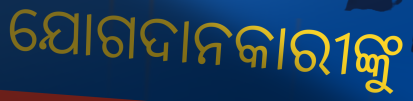
ଯୋଗଦାନକାରୀଙ୍କୁ